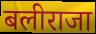
बलीराजा